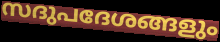
സദുപദേശങ്ങളും